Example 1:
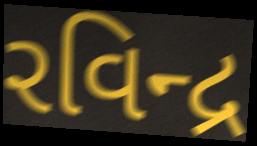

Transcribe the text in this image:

રવિન્દ્ર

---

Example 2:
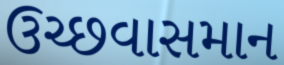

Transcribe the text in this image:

ઉચ્છવાસમાન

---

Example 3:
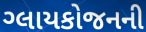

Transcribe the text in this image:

ગ્લાયકોજનની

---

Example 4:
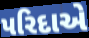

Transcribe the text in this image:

પરિદાએ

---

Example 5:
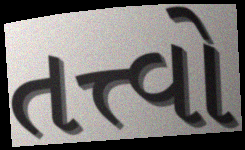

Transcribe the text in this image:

તત્ત્વો